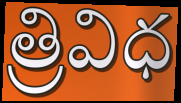
త్రివిధ